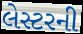
લેસ્ટરની